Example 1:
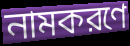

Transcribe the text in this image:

নামকরণে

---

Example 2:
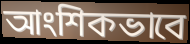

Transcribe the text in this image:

আংশিকভাবে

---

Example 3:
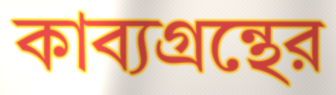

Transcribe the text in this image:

কাব্যগ্রন্থের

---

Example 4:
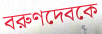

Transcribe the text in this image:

বরুণদেবকে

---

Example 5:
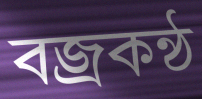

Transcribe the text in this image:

বজ্রকন্ঠ